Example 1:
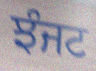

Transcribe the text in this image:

ਝੰਜਟ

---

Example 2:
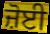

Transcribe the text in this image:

ਜ਼ੋਈ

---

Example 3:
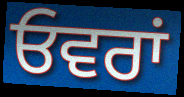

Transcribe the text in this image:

ਓਵਰਾਂ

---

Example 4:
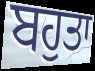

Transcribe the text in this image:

ਬਹੁਤਾ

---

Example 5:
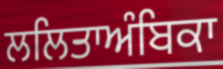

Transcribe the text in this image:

ਲਲਿਤਾਅੰਬਿਕਾ